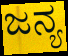
ಜನ್ಯ